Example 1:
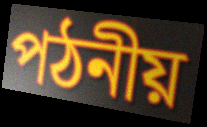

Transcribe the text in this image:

পঠনীয়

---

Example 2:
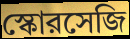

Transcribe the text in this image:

স্কোরসেজি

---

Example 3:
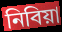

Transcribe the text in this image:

নিবিয়া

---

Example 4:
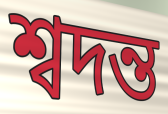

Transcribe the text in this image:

শ্বদন্ত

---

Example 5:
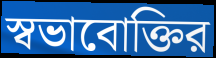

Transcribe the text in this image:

স্বভাবোক্তির